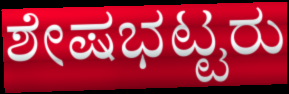
ಶೇಷಭಟ್ಟರು